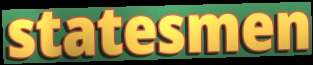
statesmen